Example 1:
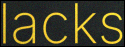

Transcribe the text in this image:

lacks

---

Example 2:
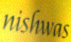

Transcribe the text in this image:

nishwas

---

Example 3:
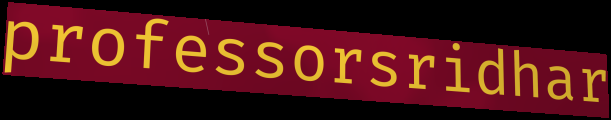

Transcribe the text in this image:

professorsridhar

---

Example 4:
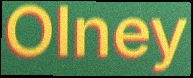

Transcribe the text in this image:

Olney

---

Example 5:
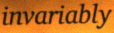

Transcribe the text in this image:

invariably